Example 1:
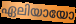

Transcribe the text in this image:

ഏലിയായോ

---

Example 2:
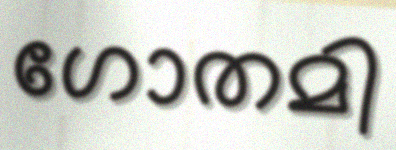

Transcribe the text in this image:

ഗോതമി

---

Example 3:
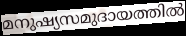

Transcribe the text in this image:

മനുഷ്യസമുദായത്തിൽ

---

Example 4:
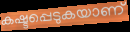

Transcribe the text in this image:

കഷ്ടപ്പെടുകയാണ്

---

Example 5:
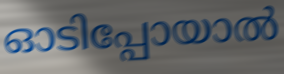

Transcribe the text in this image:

ഓടിപ്പോയാൽ